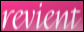
revient